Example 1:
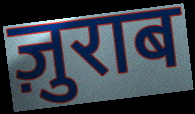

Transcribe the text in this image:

ज़ुराब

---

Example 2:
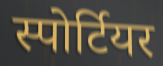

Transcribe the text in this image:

स्पोर्टियर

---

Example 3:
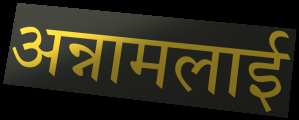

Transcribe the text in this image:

अन्नामलाई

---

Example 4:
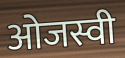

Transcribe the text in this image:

ओजस्वी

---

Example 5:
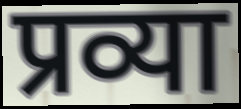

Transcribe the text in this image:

प्रव्या